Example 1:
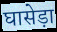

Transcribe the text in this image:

घासेड़ा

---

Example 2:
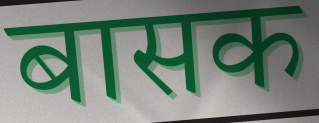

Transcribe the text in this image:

बासक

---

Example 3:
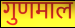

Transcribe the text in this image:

गुणमाल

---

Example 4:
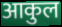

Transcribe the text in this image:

आकुल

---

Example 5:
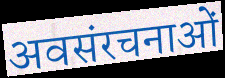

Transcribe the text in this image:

अवसंरचनाओं